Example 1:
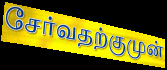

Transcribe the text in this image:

சேர்வதற்குமுன்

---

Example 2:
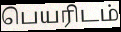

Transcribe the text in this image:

பெயரிடம்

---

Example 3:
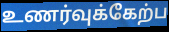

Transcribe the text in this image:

உணர்வுக்கேற்ப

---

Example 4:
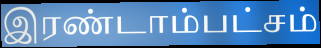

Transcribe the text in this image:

இரண்டாம்பட்சம்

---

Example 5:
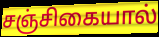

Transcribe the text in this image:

சஞ்சிகையால்